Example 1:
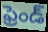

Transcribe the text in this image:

ఫ్రెండ్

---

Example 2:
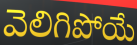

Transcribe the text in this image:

వెలిగిపోయే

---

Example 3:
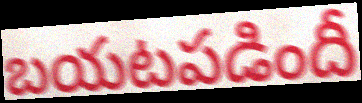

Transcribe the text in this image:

బయటపడిందీ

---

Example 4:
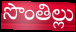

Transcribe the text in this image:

సొంతిల్లు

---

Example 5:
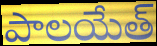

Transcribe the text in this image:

పాలయేత్